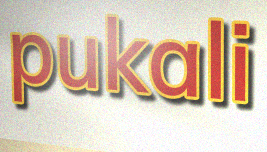
pukali